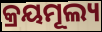
କ୍ରୟମୂଲ୍ୟ